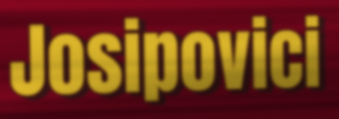
Josipovici